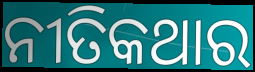
ନୀତିକଥାର